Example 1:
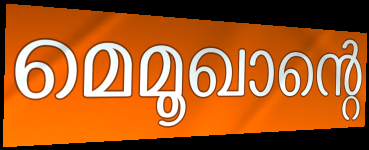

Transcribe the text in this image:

മെമൂഖാന്റെ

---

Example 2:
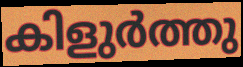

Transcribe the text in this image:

കിളുർത്തു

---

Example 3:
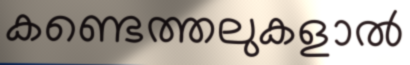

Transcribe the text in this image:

കണ്ടെത്തലുകളാൽ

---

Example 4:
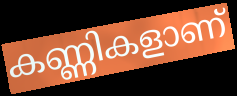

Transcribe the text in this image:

കണ്ണികളാണ്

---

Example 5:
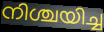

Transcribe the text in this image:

നിശ്ചയിച്ച